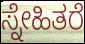
ಸ್ನೇಹಿತರೆ